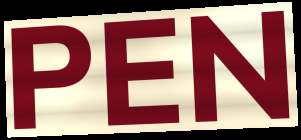
PEN